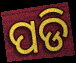
ପଡି